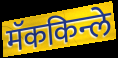
मॅककिन्ले